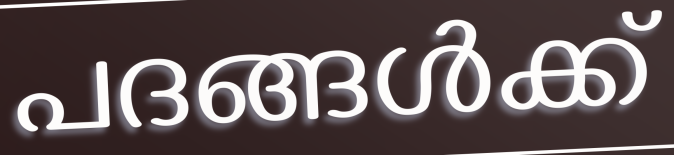
പദങ്ങൾക്ക്